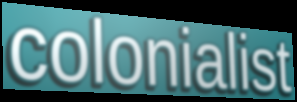
colonialist